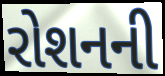
રોશનની